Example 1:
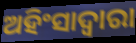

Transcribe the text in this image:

ଅହିଂସାଦ୍ୱାରା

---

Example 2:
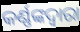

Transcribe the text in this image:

କର୍ଣ୍ଣଙ୍କଦ୍ୱାରା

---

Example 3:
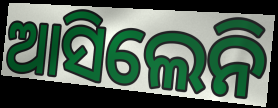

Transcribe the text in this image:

ଆସିଲେନି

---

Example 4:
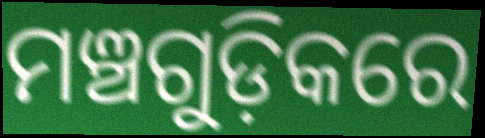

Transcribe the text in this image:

ମଞ୍ଚଗୁଡ଼ିକରେ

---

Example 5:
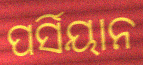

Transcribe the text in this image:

ପର୍ସିୟାନ